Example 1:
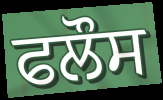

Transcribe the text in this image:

ਫਲੌਸ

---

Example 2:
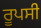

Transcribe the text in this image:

ਰੂਪਸੀ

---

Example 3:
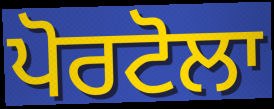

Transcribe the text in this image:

ਪੋਰਟੋਲਾ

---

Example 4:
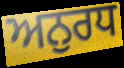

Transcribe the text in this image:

ਅਨੁਰਧ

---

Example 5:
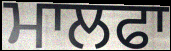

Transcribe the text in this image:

ਮਾਲਫਾ